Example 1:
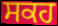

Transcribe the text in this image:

ਸਕਹ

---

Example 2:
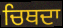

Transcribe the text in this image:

ਚਿਥਦਾ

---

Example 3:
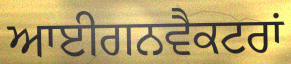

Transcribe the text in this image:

ਆਈਗਨਵੈਕਟਰਾਂ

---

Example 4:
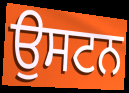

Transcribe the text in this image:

ਉਸਟਨ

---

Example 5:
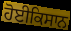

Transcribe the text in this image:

ਹੋਈਕਿਸਾਨ